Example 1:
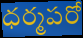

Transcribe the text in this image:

ధర్మపరో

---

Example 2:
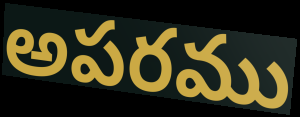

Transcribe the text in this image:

అపరము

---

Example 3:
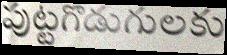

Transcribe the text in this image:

పుట్టగొడుగులకు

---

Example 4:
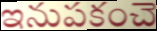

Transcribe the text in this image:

ఇనుపకంచె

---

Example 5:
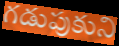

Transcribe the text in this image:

గడుపుకుని